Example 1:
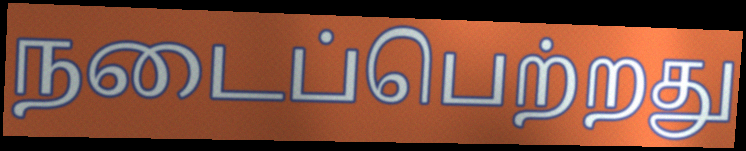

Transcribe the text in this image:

நடைப்பெற்றது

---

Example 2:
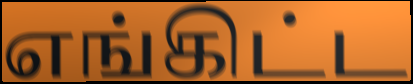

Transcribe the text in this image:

எங்கிட்ட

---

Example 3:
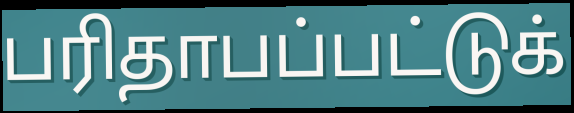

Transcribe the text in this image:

பரிதாபப்பட்டுக்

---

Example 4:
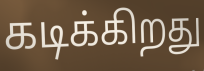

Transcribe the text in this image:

கடிக்கிறது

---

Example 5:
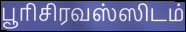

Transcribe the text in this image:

பூரிசிரவஸ்ஸிடம்